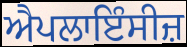
ਐਪਲਾਇੰਸੀਜ਼